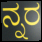
ನ್ನರ